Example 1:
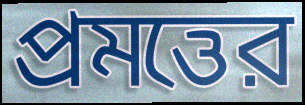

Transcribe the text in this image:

প্রমত্তের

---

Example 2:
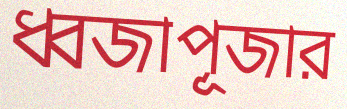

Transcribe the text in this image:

ধ্বজাপূজার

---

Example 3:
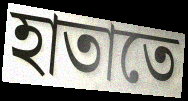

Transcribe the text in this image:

হাতাতে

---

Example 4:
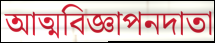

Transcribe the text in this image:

আত্মবিজ্ঞাপনদাতা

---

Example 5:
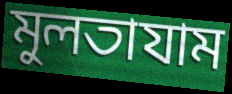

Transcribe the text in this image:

মুলতাযাম